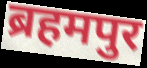
ब्रहमपुर